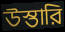
উস্তারি